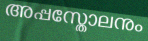
അപ്പസ്തോലനും